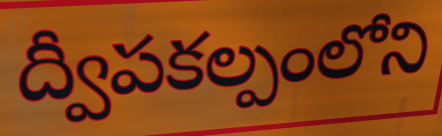
ద్వీపకల్పంలోని